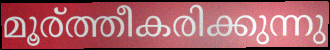
മൂര്ത്തീകരിക്കുന്നു